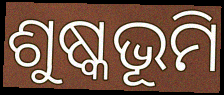
ଶୁଷ୍କଭୂମି